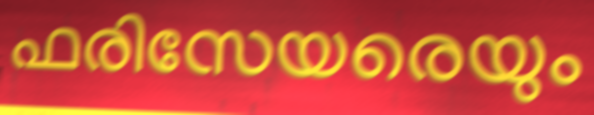
ഫരിസേയരെയും